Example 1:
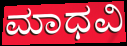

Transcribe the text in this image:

ಮಾಧವಿ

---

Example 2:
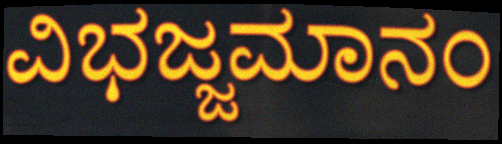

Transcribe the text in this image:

ವಿಭಜ್ಜಮಾನಂ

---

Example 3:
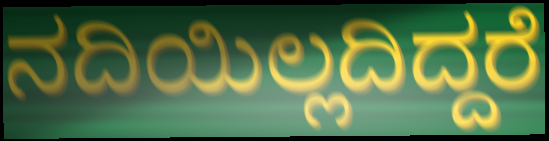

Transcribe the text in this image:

ನದಿಯಿಲ್ಲದಿದ್ದರೆ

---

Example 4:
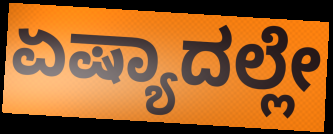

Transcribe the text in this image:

ಏಷ್ಯಾದಲ್ಲೇ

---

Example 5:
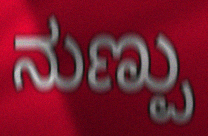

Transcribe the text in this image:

ನುಣ್ಪು